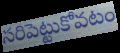
సరిపెట్టుకోవటం